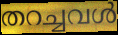
തറച്ചവൾ